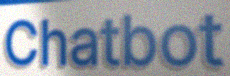
Chatbot